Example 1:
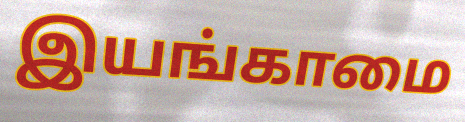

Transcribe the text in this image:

இயங்காமை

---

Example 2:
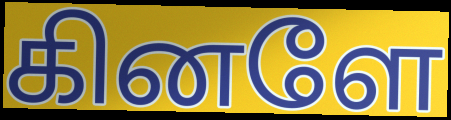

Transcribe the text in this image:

கினளே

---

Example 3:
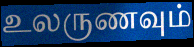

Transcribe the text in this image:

உலருணவும்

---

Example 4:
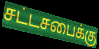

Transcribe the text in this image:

சட்டசபைக்கு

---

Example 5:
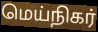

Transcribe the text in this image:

மெய்நிகர்